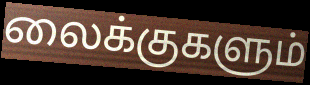
லைக்குகளும்